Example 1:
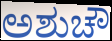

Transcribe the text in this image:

ಅಶುಚೌ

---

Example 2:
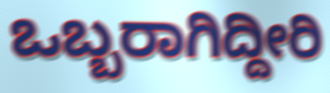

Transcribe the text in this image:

ಒಬ್ಬರಾಗಿದ್ದೀರಿ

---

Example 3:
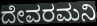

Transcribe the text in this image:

ದೇವರಮನಿ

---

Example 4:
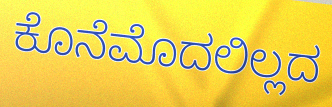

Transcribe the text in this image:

ಕೊನೆಮೊದಲಿಲ್ಲದ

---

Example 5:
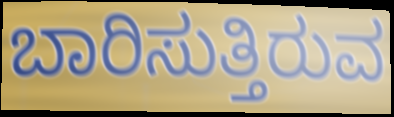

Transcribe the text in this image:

ಬಾರಿಸುತ್ತಿರುವ